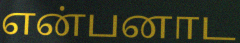
என்பனாட